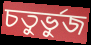
চতুৰ্ভুজ